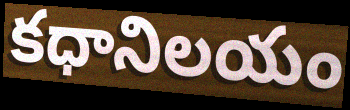
కధానిలయం